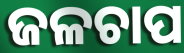
ଜଳଚାପ